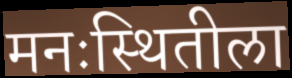
मनःस्थितीला